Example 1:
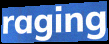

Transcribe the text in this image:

raging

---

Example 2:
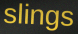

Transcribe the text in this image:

slings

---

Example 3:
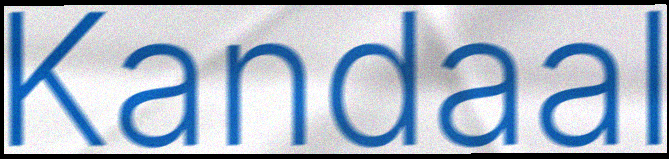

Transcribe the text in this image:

Kandaal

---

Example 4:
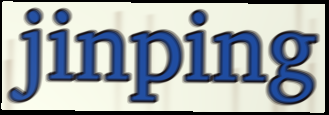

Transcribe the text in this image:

jinping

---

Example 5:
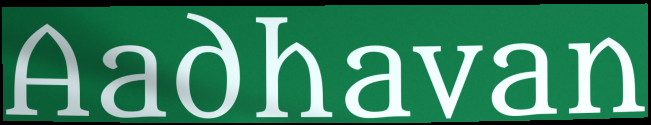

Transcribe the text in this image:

Aadhavan